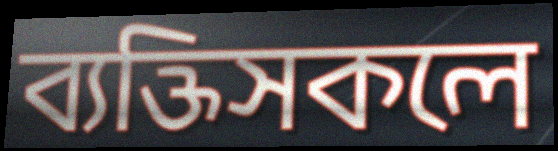
ব্যক্তিসকলে